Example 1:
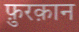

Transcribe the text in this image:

फ़ुरक़ान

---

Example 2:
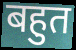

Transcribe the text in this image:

बहुत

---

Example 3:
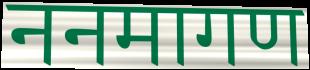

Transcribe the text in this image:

ननमागण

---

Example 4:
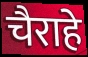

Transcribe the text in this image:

चैराहे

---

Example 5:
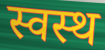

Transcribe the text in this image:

स्वस्थ